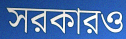
সরকারও